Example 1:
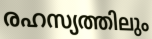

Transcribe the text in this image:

രഹസ്യത്തിലും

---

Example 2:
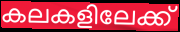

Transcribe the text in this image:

കലകളിലേക്ക്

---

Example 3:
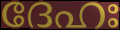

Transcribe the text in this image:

ദേഹഃ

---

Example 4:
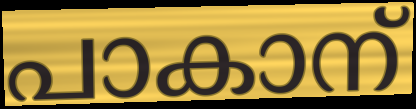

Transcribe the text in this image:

പാകാന്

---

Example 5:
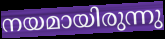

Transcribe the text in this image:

നയമായിരുന്നു